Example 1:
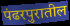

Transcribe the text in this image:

पंढरपुरातील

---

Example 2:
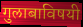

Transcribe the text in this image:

गुलाबाविषयी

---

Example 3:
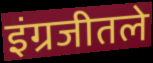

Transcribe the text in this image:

इंग्रजीतले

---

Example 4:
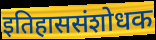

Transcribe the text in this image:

इतिहाससंशोधक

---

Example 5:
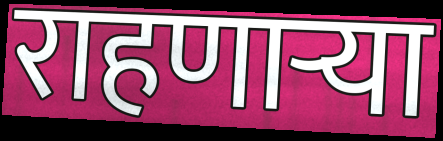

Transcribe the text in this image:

राहणार्‍या